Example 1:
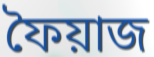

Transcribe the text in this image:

ফৈয়াজ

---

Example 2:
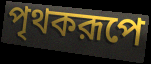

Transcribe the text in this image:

পৃথকরূপে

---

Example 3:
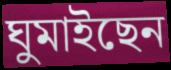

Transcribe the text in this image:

ঘুমাইছেন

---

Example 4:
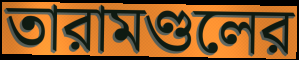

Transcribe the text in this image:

তারামণ্ডলের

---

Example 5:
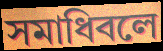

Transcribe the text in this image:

সমাধিবলে